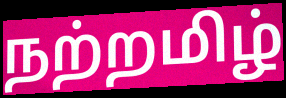
நற்றமிழ்